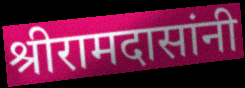
श्रीरामदासांनी